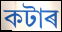
কটাৰ